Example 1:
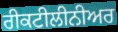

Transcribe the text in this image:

ਰੀਕਟੀਲੀਨੀਅਰ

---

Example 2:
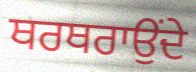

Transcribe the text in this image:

ਥਰਥਰਾਉਂਦੇ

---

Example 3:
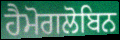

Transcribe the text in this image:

ਹੈਮੋਗਲੋਬਿਨ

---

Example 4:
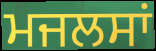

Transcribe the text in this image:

ਮਜਲਸਾਂ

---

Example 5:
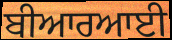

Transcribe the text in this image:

ਬੀਆਰਆਈ